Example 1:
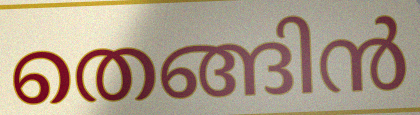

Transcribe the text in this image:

തെങ്ങിൻ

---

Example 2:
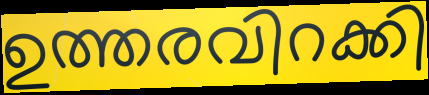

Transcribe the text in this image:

ഉത്തരവിറക്കി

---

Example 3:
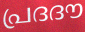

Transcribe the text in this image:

പ്രദദൗ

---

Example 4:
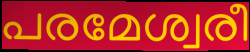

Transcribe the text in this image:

പരമേശ്വരീ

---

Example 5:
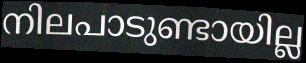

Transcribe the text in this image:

നിലപാടുണ്ടായില്ല